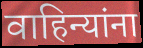
वाहिन्यांना